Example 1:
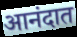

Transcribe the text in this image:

आनंदात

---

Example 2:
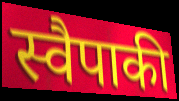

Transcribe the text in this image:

स्वैपाकी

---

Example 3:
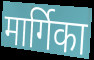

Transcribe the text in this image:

मार्गिका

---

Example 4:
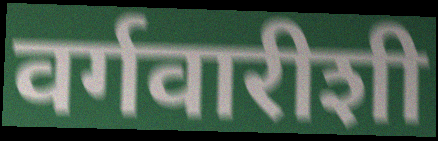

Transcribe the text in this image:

वर्गवारीशी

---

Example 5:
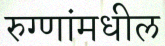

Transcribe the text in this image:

रुग्णांमधील